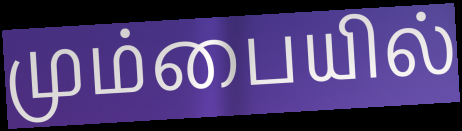
மும்பையில்